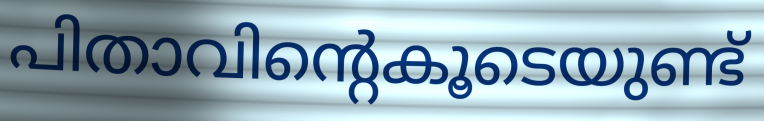
പിതാവിന്റെകൂടെയുണ്ട്